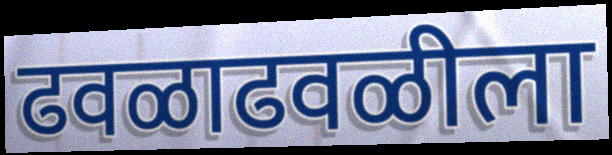
ढवळाढवळीला